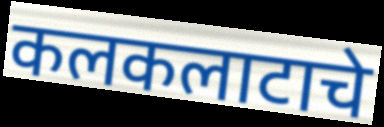
कलकलाटाचे